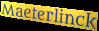
Maeterlinck